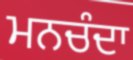
ਮਨਚੰਦਾ